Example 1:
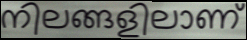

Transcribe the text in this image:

നിലങ്ങളിലാണ്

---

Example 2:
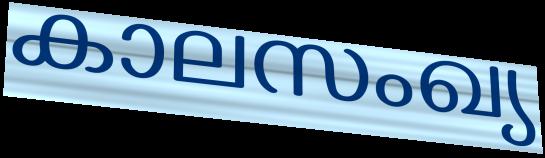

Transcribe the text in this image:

കാലസംഖ്യ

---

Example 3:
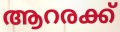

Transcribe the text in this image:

ആറരക്ക്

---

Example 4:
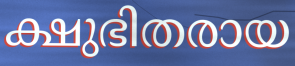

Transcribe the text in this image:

ക്ഷുഭിതരായ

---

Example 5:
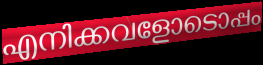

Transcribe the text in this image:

എനിക്കവളോടൊപ്പം